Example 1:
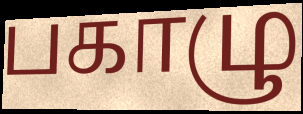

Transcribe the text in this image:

பகாழு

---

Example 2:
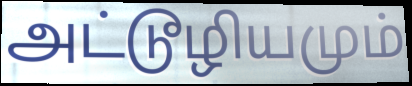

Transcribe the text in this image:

அட்டூழியமும்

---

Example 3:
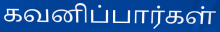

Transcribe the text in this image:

கவனிப்பார்கள்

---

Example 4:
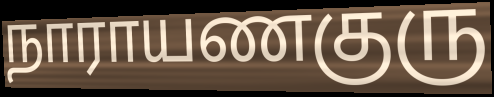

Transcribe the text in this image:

நாராயணகுரு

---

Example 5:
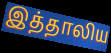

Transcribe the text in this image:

இத்தாலிய